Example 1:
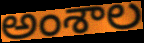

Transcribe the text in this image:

అంశాల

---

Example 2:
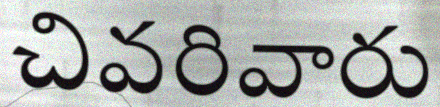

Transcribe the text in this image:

చివరివారు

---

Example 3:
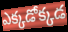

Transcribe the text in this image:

ఎక్కడోక్కడ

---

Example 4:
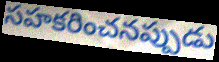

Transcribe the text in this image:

సహకరించనప్పుడు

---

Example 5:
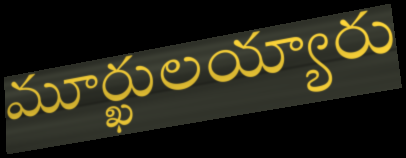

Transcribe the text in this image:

మూర్ఖులయ్యారు